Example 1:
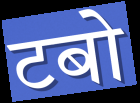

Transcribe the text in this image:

टबो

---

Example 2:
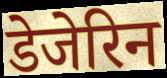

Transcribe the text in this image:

डेजेरिन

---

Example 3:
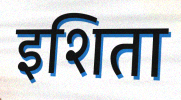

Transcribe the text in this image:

इशिता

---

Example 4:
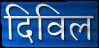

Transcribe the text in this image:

दिविल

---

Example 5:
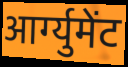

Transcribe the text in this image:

आर्ग्युमेंट